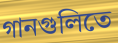
গানগুলিতে